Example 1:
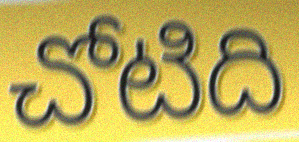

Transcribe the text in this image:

చోటిది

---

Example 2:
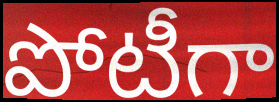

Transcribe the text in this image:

పోటీగా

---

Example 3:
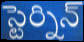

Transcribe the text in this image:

స్టెర్నిన్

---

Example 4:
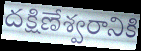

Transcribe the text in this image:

దక్షిణేశ్వరానికి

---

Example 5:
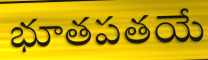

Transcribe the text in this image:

భూతపతయే